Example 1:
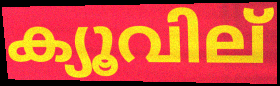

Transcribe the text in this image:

ക്യൂവില്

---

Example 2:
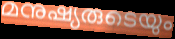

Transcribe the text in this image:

മനുഷ്യരുടെയും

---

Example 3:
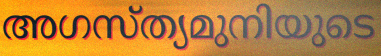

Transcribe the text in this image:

അഗസ്ത്യമുനിയുടെ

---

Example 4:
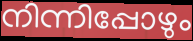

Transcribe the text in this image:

നിന്നിപ്പോഴും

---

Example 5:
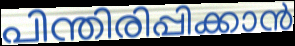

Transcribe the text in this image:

പിന്തിരിപ്പിക്കാൻ